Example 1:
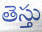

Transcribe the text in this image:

తెస్తు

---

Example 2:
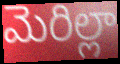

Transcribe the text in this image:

మెరిల్లా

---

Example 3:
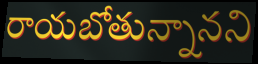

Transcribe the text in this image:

రాయబోతున్నానని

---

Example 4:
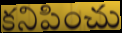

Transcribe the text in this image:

కనిపించు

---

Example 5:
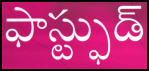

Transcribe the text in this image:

ఫాస్ట్ఫుడ్